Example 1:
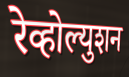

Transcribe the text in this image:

रेव्होल्युशन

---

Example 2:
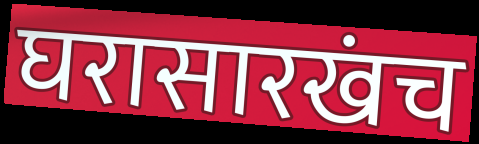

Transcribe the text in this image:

घरासारखंच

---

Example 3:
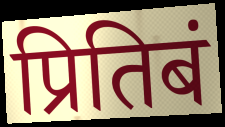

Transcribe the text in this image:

प्रितिबं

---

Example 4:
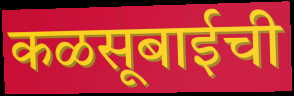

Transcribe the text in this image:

कळसूबाईची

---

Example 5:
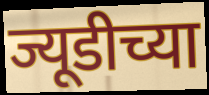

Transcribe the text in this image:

ज्यूडीच्या